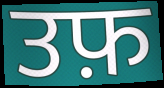
उफ़